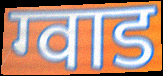
ग्वाड